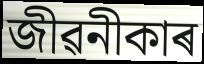
জীৱনীকাৰ